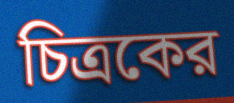
চিত্রকের